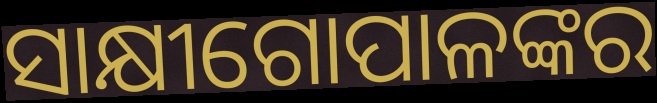
ସାକ୍ଷୀଗୋପାଳଙ୍କର